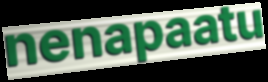
nenapaatu